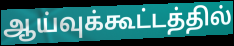
ஆய்வுக்கூட்டத்தில்